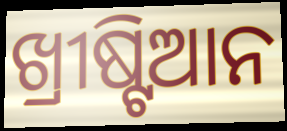
ଖ୍ରୀଷ୍ଟିଆନ